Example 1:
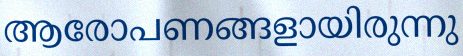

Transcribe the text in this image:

ആരോപണങ്ങളായിരുന്നു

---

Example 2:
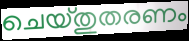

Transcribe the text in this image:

ചെയ്തുതരണം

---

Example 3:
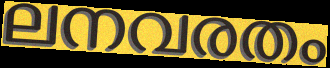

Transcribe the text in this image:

ലനവരതം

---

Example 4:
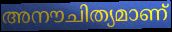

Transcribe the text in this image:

അനൗചിത്യമാണ്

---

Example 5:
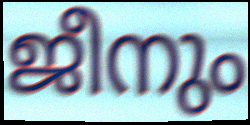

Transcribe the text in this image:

ജീനും